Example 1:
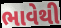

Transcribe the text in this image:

ભાવેથી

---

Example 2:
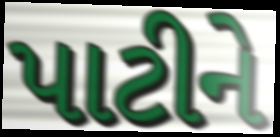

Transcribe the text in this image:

પાટીને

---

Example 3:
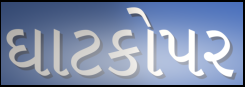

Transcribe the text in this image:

ઘાટકોપર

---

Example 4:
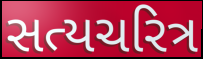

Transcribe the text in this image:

સત્યચરિત્ર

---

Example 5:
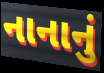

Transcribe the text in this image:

નાનાનું